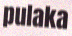
pulaka